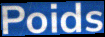
Poids